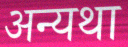
अन्यथा